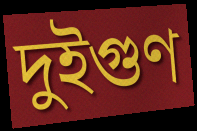
দুইগুণ